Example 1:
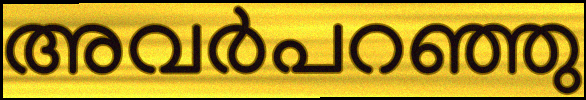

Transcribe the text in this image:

അവർപറഞ്ഞു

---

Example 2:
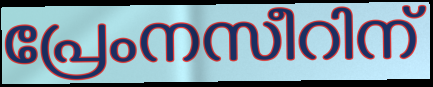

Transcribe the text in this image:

പ്രേംനസീറിന്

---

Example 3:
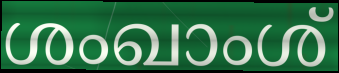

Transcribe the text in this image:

ശംഖാംശ്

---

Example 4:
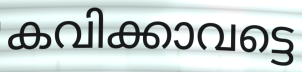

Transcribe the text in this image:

കവിക്കാവട്ടെ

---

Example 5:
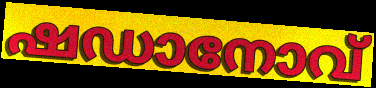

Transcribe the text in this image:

ഷഡാനോവ്